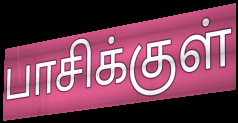
பாசிக்குள்